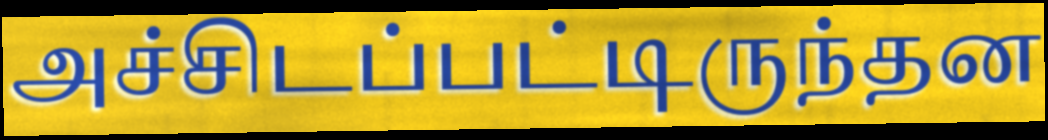
அச்சிடப்பட்டிருந்தன